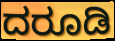
ದರೂಡಿ